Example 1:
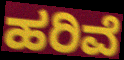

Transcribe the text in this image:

ಹರಿವೆ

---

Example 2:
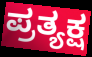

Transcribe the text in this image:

ಪ್ರತ್ಯಕ್ಷ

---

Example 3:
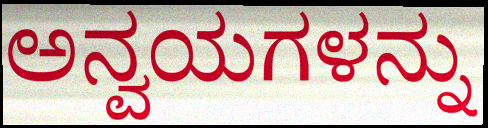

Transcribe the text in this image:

ಅನ್ವಯಗಳನ್ನು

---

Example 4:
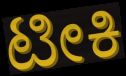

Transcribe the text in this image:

ಟೀಕಿ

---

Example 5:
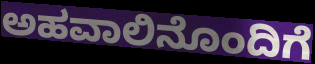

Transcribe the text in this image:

ಅಹವಾಲಿನೊಂದಿಗೆ